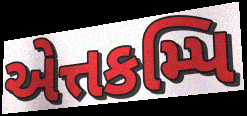
એત્તકમ્પિ